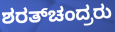
ಶರತ್‌ಚಂದ್ರರು